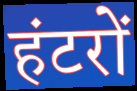
हंटरों